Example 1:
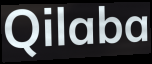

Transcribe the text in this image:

Qilaba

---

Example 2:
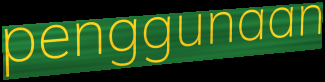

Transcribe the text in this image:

penggunaan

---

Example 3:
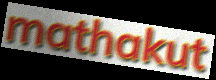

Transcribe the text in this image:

mathakut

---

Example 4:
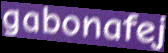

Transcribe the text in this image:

gabonafej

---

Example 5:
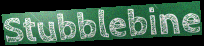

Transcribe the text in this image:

Stubblebine